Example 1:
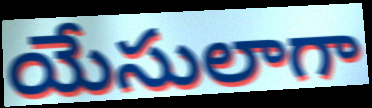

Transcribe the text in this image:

యేసులాగా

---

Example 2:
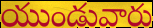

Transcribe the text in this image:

యుండువారు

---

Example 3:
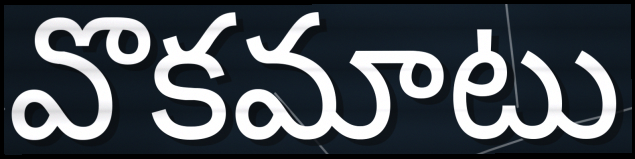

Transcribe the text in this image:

వొకమాటు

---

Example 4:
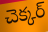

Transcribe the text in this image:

చెక్కర్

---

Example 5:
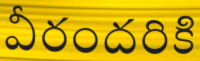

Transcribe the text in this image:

వీరందరికి